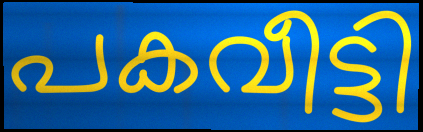
പകവീട്ടി